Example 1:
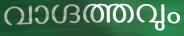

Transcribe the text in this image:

വാഗ്ദത്തവും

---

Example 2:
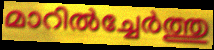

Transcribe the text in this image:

മാറിൽച്ചേർത്തു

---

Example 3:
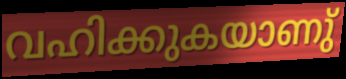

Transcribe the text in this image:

വഹിക്കുകയാണു്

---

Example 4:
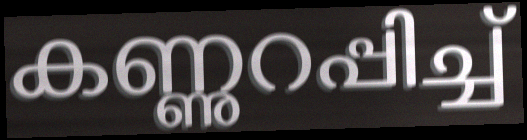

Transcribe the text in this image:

കണ്ണുറപ്പിച്ച്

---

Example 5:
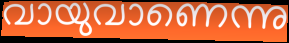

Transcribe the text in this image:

വായുവാണെന്നു